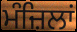
ਮੰਜ਼ਿਲਾਂ